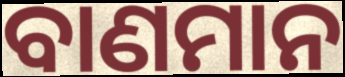
ବାଣମାନ